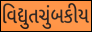
વિદ્યુતચુંબકીય